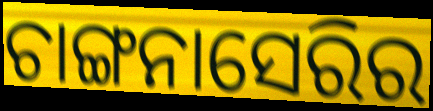
ଚାଙ୍ଗନାସେରିର